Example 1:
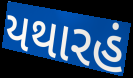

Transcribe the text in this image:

યથારહં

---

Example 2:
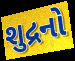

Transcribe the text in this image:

શુદ્રનો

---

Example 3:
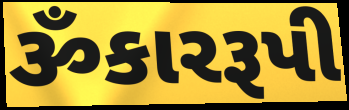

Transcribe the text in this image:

ૐકારરૂપી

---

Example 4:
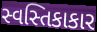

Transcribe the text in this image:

સ્વસ્તિકાકાર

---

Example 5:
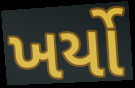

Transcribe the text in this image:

ખર્યો